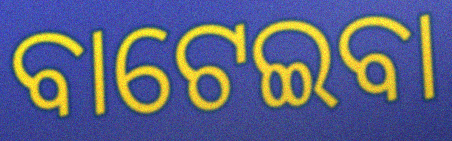
ବାଟେଇବା